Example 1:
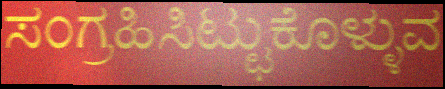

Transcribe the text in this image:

ಸಂಗ್ರಹಿಸಿಟ್ಟುಕೊಳ್ಳುವ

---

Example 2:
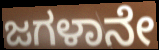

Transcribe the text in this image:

ಜಗಳಾನೇ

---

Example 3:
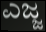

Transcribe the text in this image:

ಎಜ್ಜ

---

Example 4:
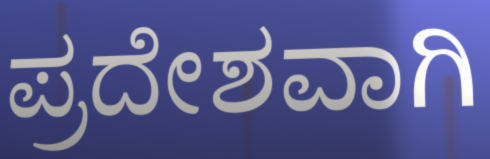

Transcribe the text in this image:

ಪ್ರದೇಶವಾಗಿ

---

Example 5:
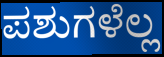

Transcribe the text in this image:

ಪಶುಗಳೆಲ್ಲ